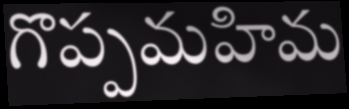
గొప్పమహిమ